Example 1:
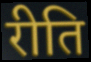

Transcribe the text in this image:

रीति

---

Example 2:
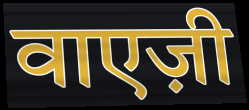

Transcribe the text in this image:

वाएज़ी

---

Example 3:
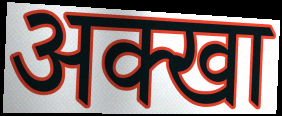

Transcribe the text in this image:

अक्खा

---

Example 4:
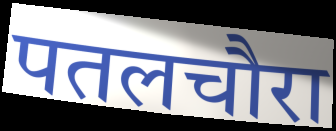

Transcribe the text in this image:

पतलचौरा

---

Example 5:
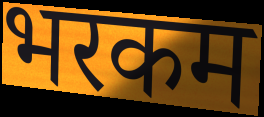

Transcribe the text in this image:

भरकम